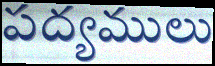
పద్యములు